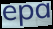
epa